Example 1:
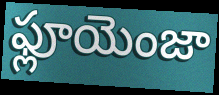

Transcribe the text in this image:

ఫ్లూయెంజా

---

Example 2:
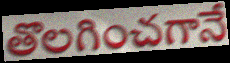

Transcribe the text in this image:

తొలగించగానే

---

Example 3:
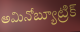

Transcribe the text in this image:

అమినోబ్యూట్రిక్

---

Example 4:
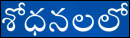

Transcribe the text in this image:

శోధనలలో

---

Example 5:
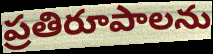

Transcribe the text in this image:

ప్రతిరూపాలను